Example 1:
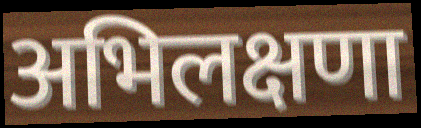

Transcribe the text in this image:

अभिलक्षणा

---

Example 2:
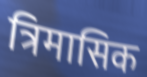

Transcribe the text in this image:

त्रिमासिक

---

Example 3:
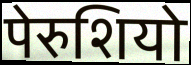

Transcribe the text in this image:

पेरुशियो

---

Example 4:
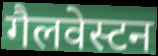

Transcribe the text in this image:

गैलवेस्टन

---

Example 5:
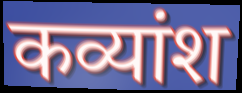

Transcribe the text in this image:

कव्यांश